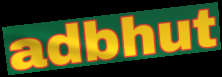
adbhut